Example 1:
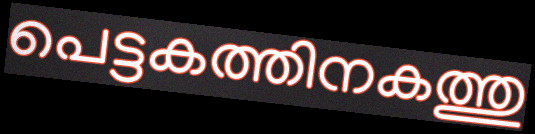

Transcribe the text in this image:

പെട്ടകത്തിനകത്തു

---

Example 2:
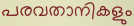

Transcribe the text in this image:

പരവതാനികളും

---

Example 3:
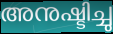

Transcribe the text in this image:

അനുഷ്ടിച്ചു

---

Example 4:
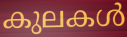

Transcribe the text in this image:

കുലകൾ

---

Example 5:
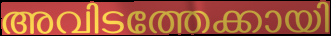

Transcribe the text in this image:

അവിടത്തേക്കായി